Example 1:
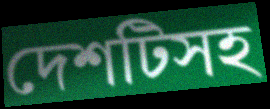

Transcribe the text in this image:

দেশটিসহ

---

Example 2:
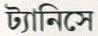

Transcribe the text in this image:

ট্যানিসে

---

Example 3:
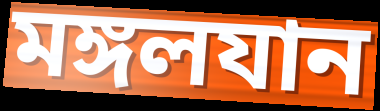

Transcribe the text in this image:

মঙ্গলযান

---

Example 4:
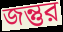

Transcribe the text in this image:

জন্তুর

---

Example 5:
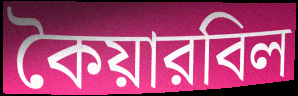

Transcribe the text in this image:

কৈয়ারবিল